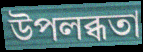
উপলব্ধতা